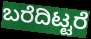
ಬರೆದಿಟ್ಟರೆ